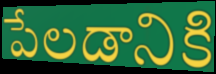
పేలడానికి